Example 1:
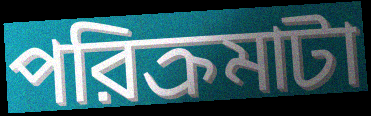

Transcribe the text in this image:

পরিক্রমাটা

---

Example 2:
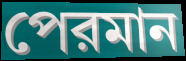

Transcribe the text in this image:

পেরমান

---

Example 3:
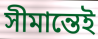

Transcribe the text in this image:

সীমান্তেই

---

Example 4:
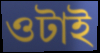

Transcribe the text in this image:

ওটাই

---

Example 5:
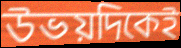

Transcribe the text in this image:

উভয়দিকেই